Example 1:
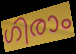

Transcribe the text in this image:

ഗിരാം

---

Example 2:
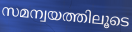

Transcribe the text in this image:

സമന്വയത്തിലൂടെ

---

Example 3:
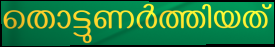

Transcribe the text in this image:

തൊട്ടുണർത്തിയത്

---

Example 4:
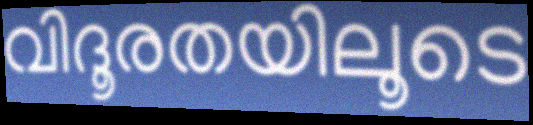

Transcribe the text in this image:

വിദൂരതയിലൂടെ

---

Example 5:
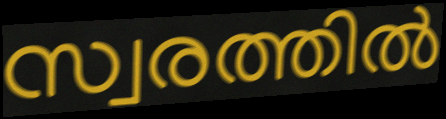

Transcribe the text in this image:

സ്വരത്തിൽ